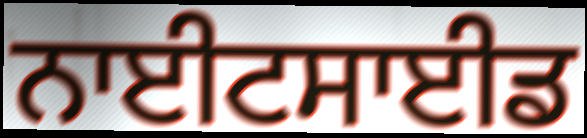
ਨਾਈਟਸਾਈਡ